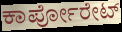
ಕಾರ್ಪೋರೇಟ್